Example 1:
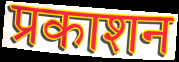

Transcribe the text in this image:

प्रकाशन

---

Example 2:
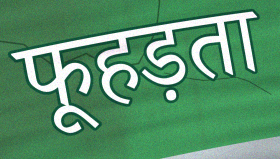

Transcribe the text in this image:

फूहड़ता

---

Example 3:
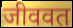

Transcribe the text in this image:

जीववत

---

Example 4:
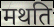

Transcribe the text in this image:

मथति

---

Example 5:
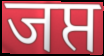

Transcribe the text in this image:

जप्त